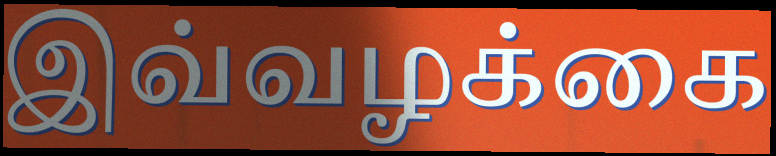
இவ்வழக்கை